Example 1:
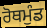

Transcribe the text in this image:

ਰੋਥਮੁੰਡ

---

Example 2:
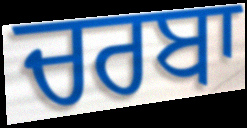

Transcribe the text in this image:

ਚਰਬਾ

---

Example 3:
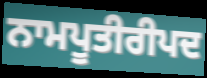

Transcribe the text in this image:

ਨਾਮਪੂਤੀਰੀਪਦ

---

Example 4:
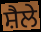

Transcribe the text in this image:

ਸ਼ੈਲੇ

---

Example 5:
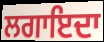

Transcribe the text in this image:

ਲਗਾਇਦਾ